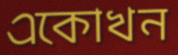
একোখন